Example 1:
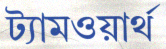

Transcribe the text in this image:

ট্যামওয়ার্থ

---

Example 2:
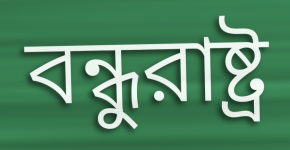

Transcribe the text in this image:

বন্ধুরাষ্ট্র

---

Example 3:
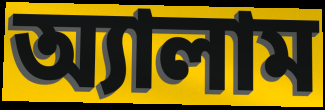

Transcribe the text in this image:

অ্যালাম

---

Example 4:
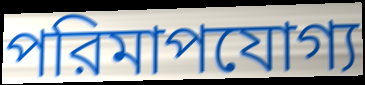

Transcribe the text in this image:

পরিমাপযোগ্য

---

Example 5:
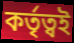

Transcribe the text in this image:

কর্তৃত্বই